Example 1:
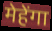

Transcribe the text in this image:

मेहेंगा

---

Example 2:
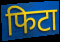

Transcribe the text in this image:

फिटा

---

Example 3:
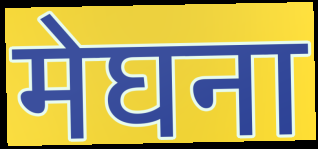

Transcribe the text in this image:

मेघना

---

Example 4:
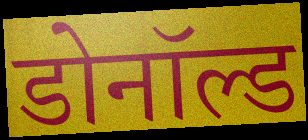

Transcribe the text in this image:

डोनॉल्ड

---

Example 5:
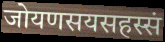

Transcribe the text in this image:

जोयणसयसहस्सं